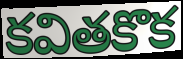
కవితకొక